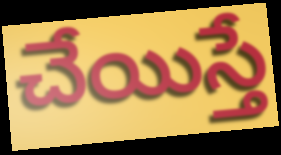
చేయిస్తే